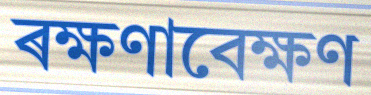
ৰক্ষণাবেক্ষণ